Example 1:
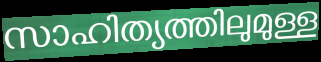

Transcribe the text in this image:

സാഹിത്യത്തിലുമുള്ള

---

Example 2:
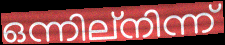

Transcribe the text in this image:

ഒന്നില്നിന്ന്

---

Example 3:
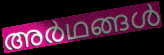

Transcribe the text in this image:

അർഥങ്ങൾ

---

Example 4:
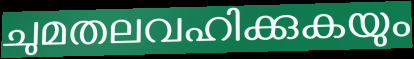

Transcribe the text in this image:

ചുമതലവഹിക്കുകയും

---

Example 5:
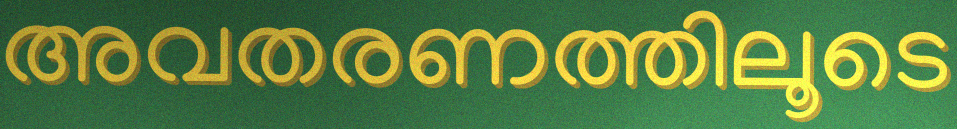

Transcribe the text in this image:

അവതരണത്തിലൂടെ